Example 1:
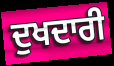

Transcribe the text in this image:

ਦੁਖਦਾਰੀ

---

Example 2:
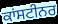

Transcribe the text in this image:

ਕਾਂਸਟੀਨਰ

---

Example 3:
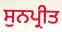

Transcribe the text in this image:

ਸੁਨਪ੍ਰੀਤ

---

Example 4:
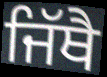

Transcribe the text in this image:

ਜਿੱਥੈ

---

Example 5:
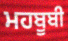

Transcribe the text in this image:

ਮਹਬੂਬੀ